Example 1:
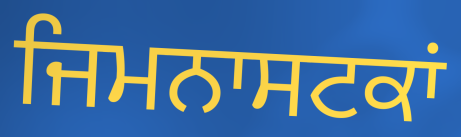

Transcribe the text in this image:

ਜਿਮਨਾਸਟਕਾਂ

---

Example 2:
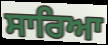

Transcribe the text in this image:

ਸਾਰਿਆ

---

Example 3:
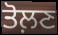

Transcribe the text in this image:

ਤੋਲ਼ਣ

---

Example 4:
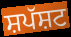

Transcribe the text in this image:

ਸ਼ਪੱਸ਼ਟ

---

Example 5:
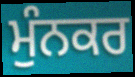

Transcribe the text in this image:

ਮੁੰਨਕਰ